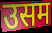
उसम